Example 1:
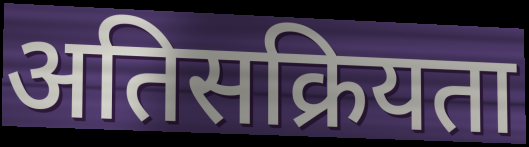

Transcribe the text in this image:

अतिसक्रियता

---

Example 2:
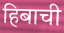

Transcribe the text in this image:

हिबाची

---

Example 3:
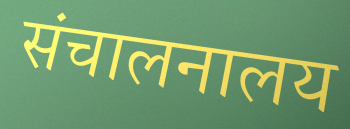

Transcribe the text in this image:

संचालनालय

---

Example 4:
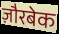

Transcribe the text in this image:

ज़ौरबेक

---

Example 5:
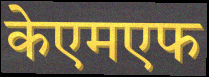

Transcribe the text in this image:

केएमएफ